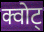
क्वोट्